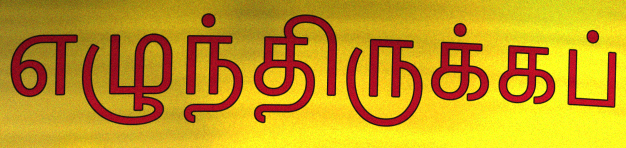
எழுந்திருக்கப்